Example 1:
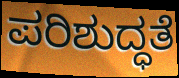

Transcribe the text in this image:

ಪರಿಶುದ್ಧತೆ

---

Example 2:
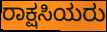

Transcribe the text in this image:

ರಾಕ್ಷಸಿಯರು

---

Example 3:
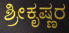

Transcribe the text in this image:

ಶ್ರೀಕೃಷ್ಣರ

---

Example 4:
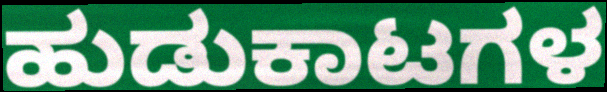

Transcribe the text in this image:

ಹುಡುಕಾಟಗಳ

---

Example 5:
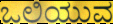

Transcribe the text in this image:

ಒಲಿಯುವ